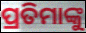
ପ୍ରତିମାଙ୍କୁ